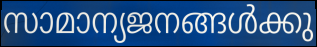
സാമാന്യജനങ്ങൾക്കു